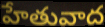
హేతువాద